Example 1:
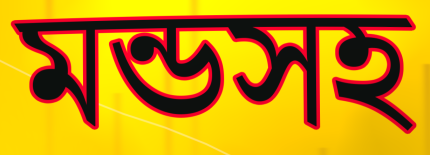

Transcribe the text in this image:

মন্ডসহ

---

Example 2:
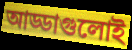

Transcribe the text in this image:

আড্ডাগুলোই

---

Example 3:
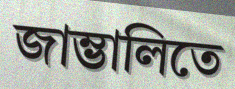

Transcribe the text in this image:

জাম্ভালিতে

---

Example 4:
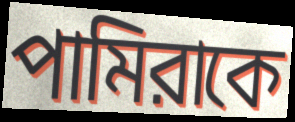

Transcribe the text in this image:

পামিরাকে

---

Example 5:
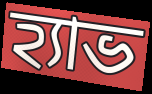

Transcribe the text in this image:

হ্যাভ